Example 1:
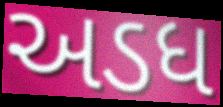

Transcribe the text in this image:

અડધ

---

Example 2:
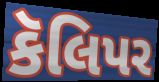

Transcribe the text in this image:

કૅલિપર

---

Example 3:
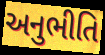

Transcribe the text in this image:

અનુભીતિ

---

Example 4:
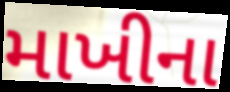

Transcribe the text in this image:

માખીના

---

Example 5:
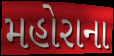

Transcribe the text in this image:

મહોરાના